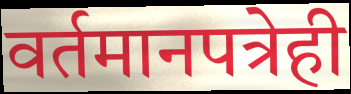
वर्तमानपत्रेही